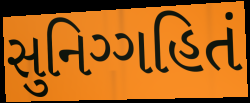
સુનિગ્ગહિતં